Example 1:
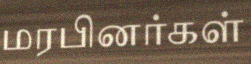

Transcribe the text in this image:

மரபினர்கள்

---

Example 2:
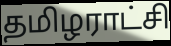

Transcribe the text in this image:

தமிழராட்சி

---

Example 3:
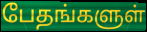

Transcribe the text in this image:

பேதங்களுள்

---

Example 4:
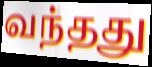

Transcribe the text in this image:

வந்தது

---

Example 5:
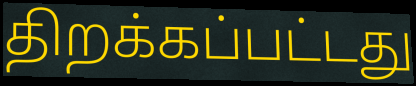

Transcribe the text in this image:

திறக்கப்பட்டது